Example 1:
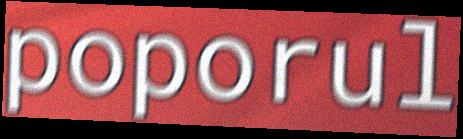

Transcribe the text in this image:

poporul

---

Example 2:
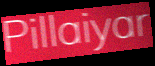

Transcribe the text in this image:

Pillaiyar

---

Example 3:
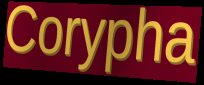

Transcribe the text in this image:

Corypha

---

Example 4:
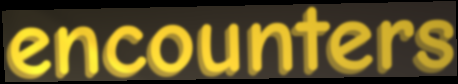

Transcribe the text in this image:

encounters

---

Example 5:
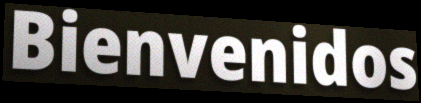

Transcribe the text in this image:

Bienvenidos